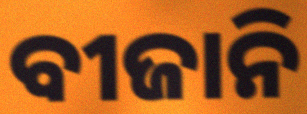
ବୀଜାନି